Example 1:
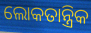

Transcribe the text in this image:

ଲୋକତାନ୍ତ୍ରିକ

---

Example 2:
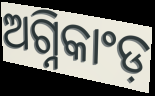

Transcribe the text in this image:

ଅଗ୍ନିକାଂଡ଼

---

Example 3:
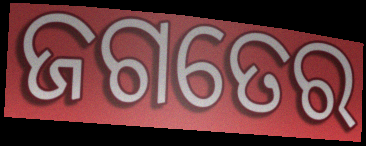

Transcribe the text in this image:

ଜଗତେର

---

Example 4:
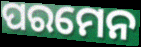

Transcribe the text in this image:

ପରମେନ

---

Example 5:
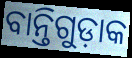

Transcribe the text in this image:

ବାନ୍ତିଗୁଡ଼ାକ